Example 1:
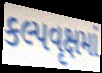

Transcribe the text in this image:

કલ્પવૃક્ષમાં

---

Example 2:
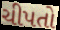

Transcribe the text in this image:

ચીપતો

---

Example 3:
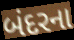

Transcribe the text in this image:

બંદરના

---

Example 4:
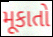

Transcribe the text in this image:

મૂકાતો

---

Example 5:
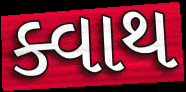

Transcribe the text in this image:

ક્વાથ